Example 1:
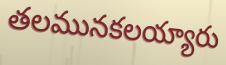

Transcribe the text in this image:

తలమునకలయ్యారు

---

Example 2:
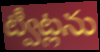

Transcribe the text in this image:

ట్వీట్లను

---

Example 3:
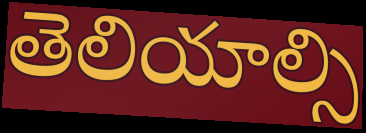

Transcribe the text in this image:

తెలియాల్సి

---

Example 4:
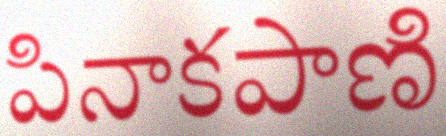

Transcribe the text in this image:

పినాకపాణి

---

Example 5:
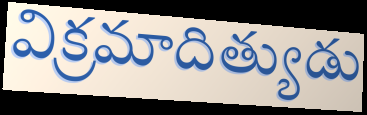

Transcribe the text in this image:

విక్రమాదిత్యుడు